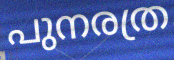
പുനരത്ര